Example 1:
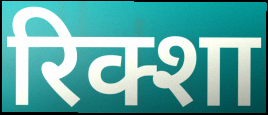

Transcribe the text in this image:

रिक्शा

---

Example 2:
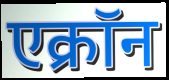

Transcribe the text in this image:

एक्रॉन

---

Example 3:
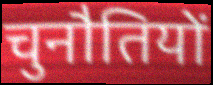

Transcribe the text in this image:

चुनौतियों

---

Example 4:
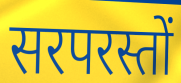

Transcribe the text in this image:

सरपरस्तों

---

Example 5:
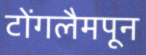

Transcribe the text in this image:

टोंगलैमपून